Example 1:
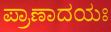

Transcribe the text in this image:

ಪ್ರಾಣಾದಯಃ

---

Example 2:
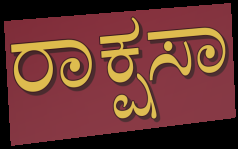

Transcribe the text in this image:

ರಾಕ್ಷಸಾ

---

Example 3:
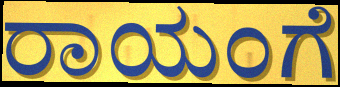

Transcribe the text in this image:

ರಾಯಂಗೆ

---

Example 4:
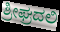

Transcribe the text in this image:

ಶ್ರೀಘ್ರದಲಿ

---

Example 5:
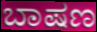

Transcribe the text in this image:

ಬಾಷಣ